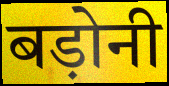
बड़ोनी